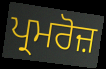
ਪ੍ਰਮਰੋਜ਼